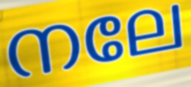
നലേ